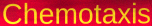
Chemotaxis